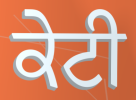
ਕੇਟੀ